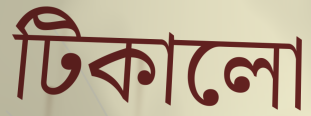
টিকালো